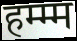
हम्म्म